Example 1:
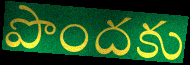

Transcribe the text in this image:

పొందకు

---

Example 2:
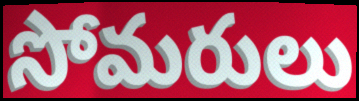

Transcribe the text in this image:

సోమరులు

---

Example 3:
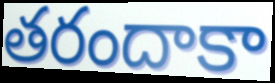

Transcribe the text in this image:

తరందాకా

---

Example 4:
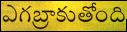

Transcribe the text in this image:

ఎగబ్రాకుతోంది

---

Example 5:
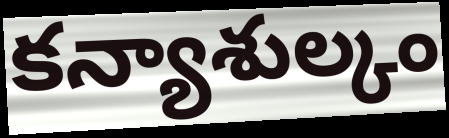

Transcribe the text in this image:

కన్యాశుల్కం